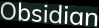
Obsidian